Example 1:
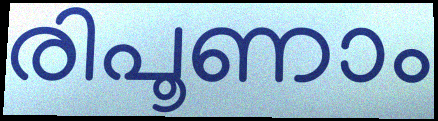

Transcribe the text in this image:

രിപൂണാം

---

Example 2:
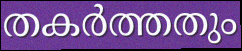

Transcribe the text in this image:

തകർത്തതും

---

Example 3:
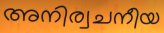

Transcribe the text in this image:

അനിര്വചനീയ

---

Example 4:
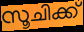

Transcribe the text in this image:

സൂചിക്ക്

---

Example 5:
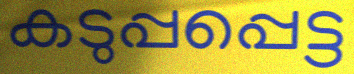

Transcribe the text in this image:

കടുപ്പപ്പെട്ട